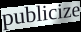
publicize